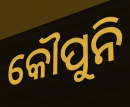
କୌପୁନି